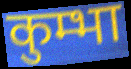
कुम्भा